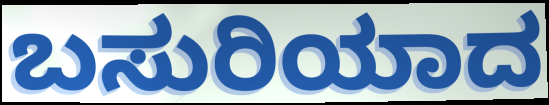
ಬಸುರಿಯಾದ